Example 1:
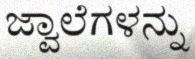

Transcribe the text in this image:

ಜ್ವಾಲೆಗಳನ್ನು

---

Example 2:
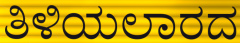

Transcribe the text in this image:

ತಿಳಿಯಲಾರದ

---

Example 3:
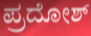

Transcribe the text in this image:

ಪ್ರದೋಶ್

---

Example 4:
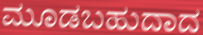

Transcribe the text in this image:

ಮೂಡಬಹುದಾದ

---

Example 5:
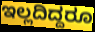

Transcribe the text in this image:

ಇಲ್ಲದಿದ್ದರೂ